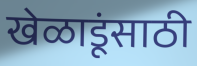
खेळाडूंसाठी